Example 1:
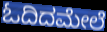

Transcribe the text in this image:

ಓದಿದಮೇಲೆ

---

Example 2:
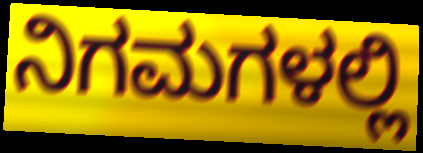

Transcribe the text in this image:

ನಿಗಮಗಳಲ್ಲಿ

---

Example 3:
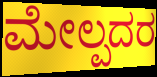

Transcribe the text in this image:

ಮೇಲ್ಪದರ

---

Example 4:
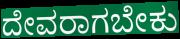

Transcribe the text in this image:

ದೇವರಾಗಬೇಕು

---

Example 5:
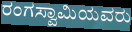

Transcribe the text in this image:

ರಂಗಸ್ವಾಮಿಯವರು